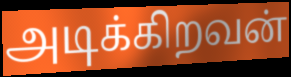
அடிக்கிறவன்